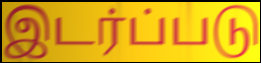
இடர்ப்படு